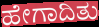
ಹೇಗಾದಿತು